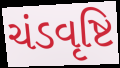
ચંડવૃષ્ટિ